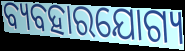
ବ୍ୟବହାରଯୋଗ୍ୟ